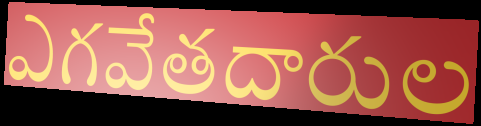
ఎగవేతదారుల